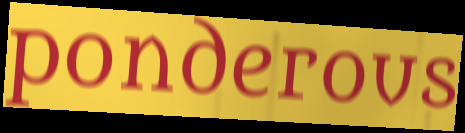
ponderous